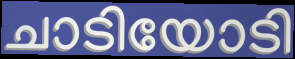
ചാടിയോടി